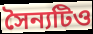
সৈন্যটিও